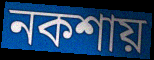
নকশায়